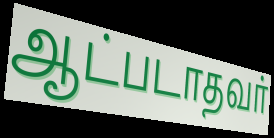
ஆட்படாதவர்